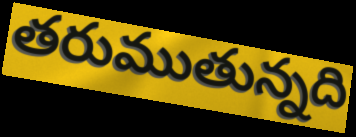
తరుముతున్నది